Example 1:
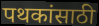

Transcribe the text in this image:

पथकांसाठी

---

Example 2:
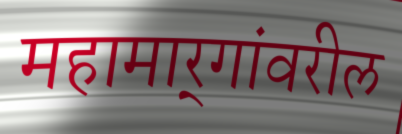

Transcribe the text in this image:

महामार्गांवरील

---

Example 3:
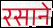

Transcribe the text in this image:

रसाने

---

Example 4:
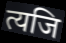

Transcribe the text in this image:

त्यजि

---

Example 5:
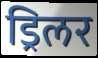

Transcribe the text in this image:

ड्रिलर